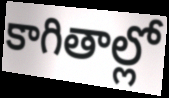
కాగితాల్లో